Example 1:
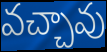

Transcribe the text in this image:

వచ్చావు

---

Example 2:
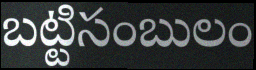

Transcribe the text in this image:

బట్టిసంబులం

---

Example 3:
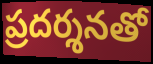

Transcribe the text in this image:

ప్రదర్శనతో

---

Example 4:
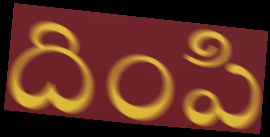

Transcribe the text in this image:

దింపి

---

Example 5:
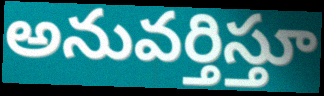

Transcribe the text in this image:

అనువర్తిస్తూ